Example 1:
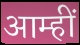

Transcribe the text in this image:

आम्हीं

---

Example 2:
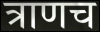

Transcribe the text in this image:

त्राणच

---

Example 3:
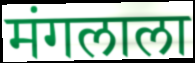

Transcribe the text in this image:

मंगलाला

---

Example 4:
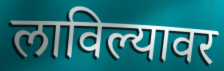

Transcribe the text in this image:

लाविल्यावर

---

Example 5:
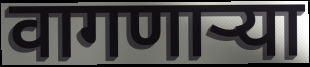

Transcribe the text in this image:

वागणाऱ्या